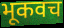
भूकवच